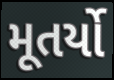
મૂતર્યો